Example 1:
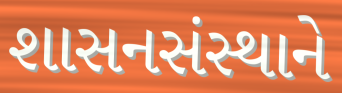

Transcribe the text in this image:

શાસનસંસ્થાને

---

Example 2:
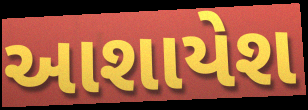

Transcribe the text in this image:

આશાયેશ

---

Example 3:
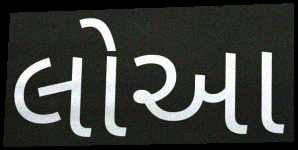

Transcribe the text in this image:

લોઆ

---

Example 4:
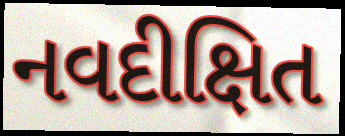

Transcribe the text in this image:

નવદીક્ષિત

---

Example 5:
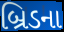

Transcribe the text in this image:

બ્રિડના